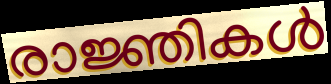
രാജ്ഞികൾ